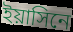
ইয়াসিনে